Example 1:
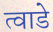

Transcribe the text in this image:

त्वाडे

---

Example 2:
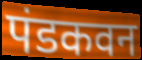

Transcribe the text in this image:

पंडकवन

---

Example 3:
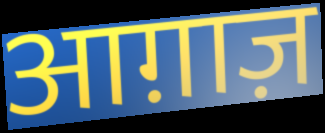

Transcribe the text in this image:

आग़ाज़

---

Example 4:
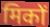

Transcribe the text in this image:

मिकों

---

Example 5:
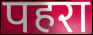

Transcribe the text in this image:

पहरा